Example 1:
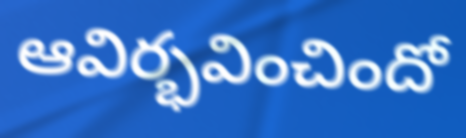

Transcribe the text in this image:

ఆవిర్భవించిందో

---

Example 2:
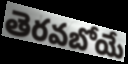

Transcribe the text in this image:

తెరవబోయే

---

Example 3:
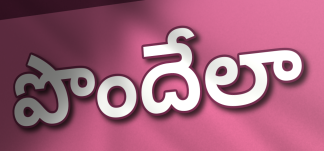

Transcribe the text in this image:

పొందేలా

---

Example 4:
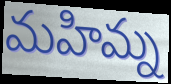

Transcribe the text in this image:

మహిమ్న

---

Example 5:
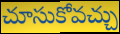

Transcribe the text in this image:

చూసుకోవచ్చు